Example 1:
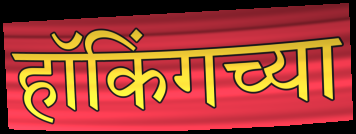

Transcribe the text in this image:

हॉकिंगच्या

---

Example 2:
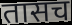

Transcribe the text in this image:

तासच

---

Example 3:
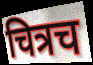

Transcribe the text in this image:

चित्रच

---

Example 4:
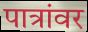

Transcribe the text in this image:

पात्रांवर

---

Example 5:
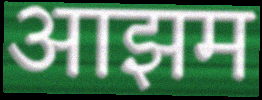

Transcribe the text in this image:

आझम